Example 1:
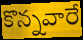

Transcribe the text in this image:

కొన్నవారే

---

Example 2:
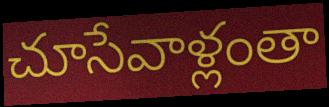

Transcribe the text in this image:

చూసేవాళ్లంతా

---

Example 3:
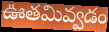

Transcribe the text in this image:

ఊతమివ్వడం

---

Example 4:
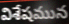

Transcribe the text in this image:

విశేషమున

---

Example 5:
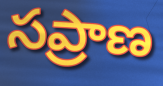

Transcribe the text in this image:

సప్రాణ